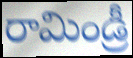
రామిండ్రీ